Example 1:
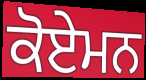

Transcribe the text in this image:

ਕੋਏਮਨ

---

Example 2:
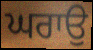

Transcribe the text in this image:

ਘਰਾਉ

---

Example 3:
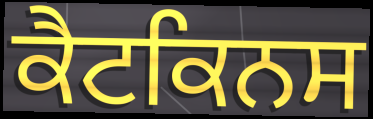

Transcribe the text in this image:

ਕੈਟਕਿਨਸ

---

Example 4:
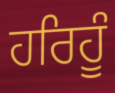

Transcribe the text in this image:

ਹਰਿਹੂੰ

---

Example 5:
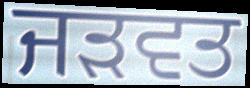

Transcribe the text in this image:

ਜੜਵਤ